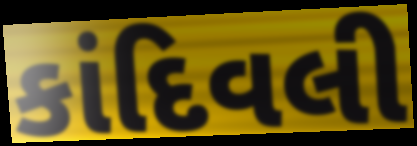
કાંદિવલી